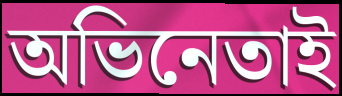
অভিনেতাই